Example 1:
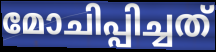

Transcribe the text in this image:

മോചിപ്പിച്ചത്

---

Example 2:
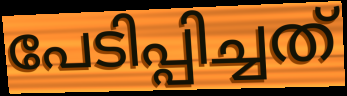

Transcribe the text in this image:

പേടിപ്പിച്ചത്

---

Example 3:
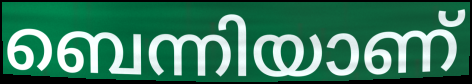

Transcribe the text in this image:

ബെന്നിയാണ്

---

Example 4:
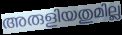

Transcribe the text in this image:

അരുളിയതുമില്ല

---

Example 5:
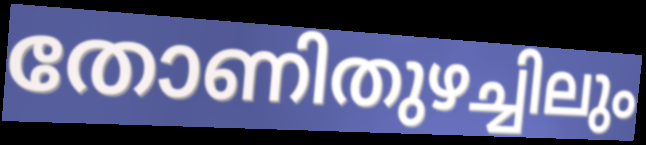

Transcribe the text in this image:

തോണിതുഴച്ചിലും